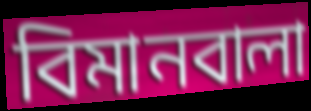
বিমানবালা